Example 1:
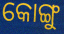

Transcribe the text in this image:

କୋଙ୍ଗୁ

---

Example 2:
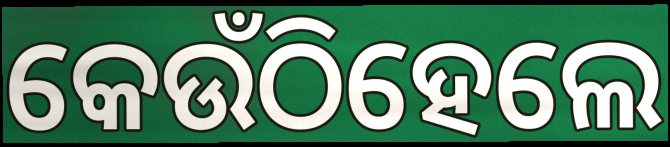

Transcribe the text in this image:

କେଉଁଠିହେଲେ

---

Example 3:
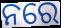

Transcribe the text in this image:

ନରେ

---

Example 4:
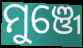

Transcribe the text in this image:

ମୁଞ୍ଜେ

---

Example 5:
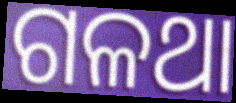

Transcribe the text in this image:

ଗଳଥା